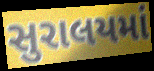
સુરાલયમાં